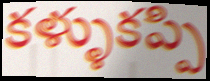
కళ్ళుకప్పి